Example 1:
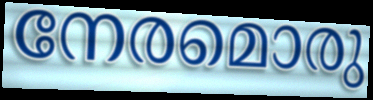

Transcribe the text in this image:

നേരമൊരു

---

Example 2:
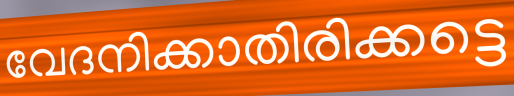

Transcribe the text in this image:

വേദനിക്കാതിരിക്കട്ടെ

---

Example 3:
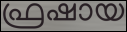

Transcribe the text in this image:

ഫ്രഷായ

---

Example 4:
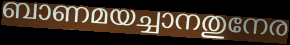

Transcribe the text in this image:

ബാണമയച്ചാനതുനേര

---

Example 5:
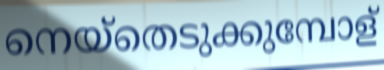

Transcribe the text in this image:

നെയ്തെടുക്കുമ്പോള്